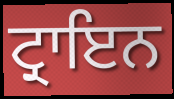
ਟ੍ਰਾਇਨ